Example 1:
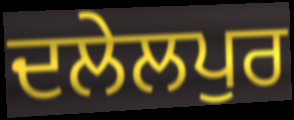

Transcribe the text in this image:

ਦਲੇਲਪੁਰ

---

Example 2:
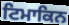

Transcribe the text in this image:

ਟਿਮਾਕਿਨ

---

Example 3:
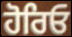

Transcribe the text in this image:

ਹੋਰਿਓ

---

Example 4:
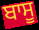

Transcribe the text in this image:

ਬਾਸੂ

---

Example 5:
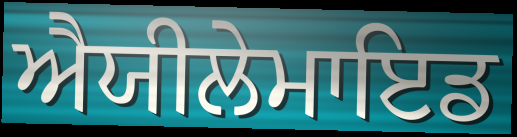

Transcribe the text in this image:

ਐਯੀਲੇਮਾਇਡ